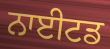
ਨਾਈਟਡ